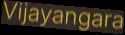
Vijayangara